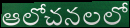
ఆలోచనలలో